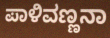
ಪಾಳಿವಣ್ಣನಾ